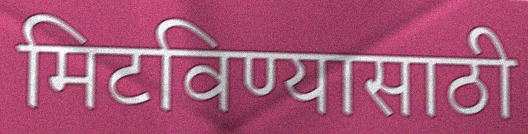
मिटविण्यासाठी